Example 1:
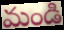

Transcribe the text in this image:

మండి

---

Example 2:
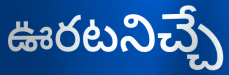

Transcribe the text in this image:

ఊరటనిచ్చే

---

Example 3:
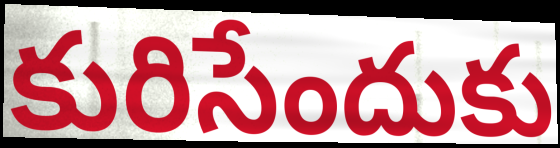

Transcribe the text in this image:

కురిసేందుకు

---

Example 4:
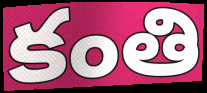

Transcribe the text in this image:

కంతి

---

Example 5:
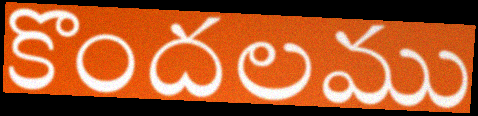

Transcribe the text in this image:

కొందలము